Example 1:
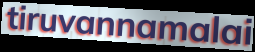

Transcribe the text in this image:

tiruvannamalai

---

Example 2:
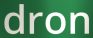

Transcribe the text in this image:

dron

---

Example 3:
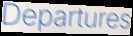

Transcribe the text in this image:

Departures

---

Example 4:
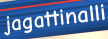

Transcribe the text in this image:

jagattinalli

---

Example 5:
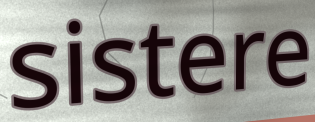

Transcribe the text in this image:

sistere